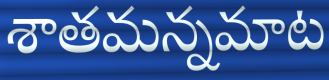
శాతమన్నమాట